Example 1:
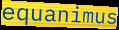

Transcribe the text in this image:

equanimus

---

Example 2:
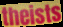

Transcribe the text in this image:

theists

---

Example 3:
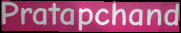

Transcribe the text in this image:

Pratapchand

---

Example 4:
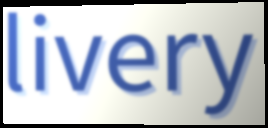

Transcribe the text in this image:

livery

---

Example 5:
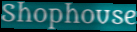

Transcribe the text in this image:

Shophouse